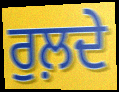
ਰੁਲ਼ਦੇ